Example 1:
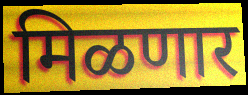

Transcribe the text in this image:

मिळणार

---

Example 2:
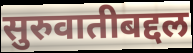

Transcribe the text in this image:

सुरुवातीबद्दल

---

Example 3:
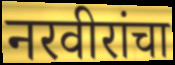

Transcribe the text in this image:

नरवीरांचा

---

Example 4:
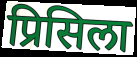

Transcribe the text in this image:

प्रिसिला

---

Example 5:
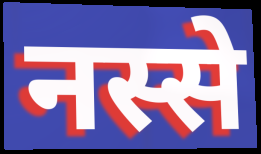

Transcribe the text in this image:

नस्से